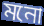
মনো